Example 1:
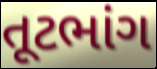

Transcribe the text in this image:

તૂટભાંગ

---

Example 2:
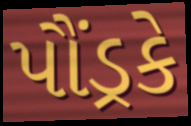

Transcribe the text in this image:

પૌંડ્રકે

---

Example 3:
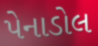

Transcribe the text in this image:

પેનાડોલ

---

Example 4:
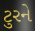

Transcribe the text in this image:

ટુરને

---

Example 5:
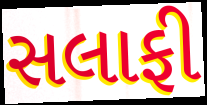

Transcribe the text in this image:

સલાફી